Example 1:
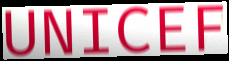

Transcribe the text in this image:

UNICEF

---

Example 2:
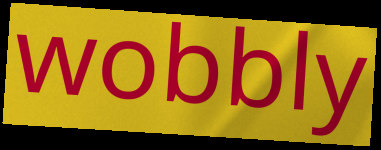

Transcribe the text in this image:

wobbly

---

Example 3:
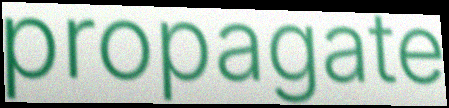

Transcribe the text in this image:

propagate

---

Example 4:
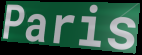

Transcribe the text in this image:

Paris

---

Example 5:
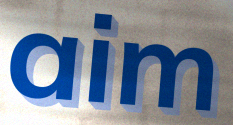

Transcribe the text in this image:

aim